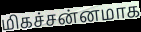
மிகச்சன்னமாக